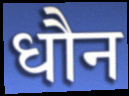
धौन